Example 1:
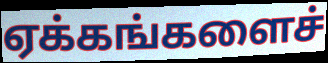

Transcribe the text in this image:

ஏக்கங்களைச்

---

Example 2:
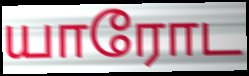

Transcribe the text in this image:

யாரோட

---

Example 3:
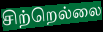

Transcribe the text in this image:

சிற்றெல்லை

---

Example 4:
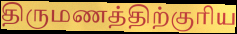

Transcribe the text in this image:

திருமணத்திற்குரிய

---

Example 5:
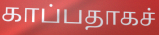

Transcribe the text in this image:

காப்பதாகச்